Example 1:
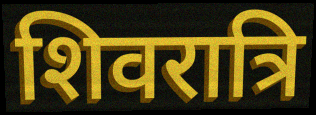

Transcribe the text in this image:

शिवरात्रि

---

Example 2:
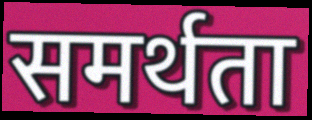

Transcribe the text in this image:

समर्थता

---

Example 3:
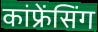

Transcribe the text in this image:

कांफ्रेंसिंग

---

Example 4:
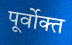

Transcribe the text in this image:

पूर्वोक्‍त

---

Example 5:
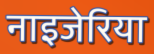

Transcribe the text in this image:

नाइजेरिया